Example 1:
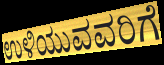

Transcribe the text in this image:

ಉಳಿಯುವವರಿಗೆ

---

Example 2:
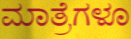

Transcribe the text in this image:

ಮಾತ್ರೆಗಳೂ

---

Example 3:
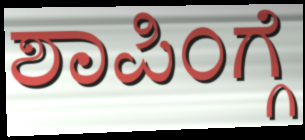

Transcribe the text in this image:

ಶಾಪಿಂಗ್ಗೆ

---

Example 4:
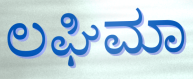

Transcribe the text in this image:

ಲಘಿಮಾ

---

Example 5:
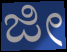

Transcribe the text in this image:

ಜೀ